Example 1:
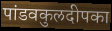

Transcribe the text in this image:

पांडवकुलदीपका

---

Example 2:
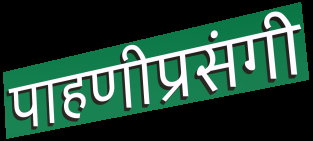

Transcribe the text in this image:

पाहणीप्रसंगी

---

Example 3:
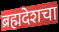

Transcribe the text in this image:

ब्रह्मदेशचा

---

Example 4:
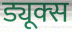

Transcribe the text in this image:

ड्यूक्‍स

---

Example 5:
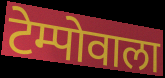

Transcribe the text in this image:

टेम्पोवाला